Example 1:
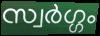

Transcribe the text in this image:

സ്വർഗ്ഗം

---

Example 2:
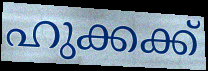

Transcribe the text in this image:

ഹുക്കക്ക്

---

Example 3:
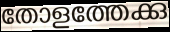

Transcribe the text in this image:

തോളത്തേക്കു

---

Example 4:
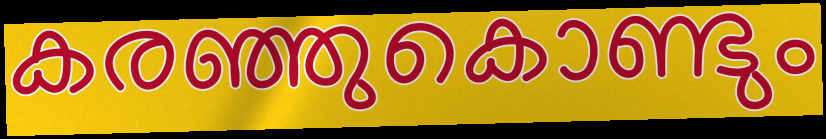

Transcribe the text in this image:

കരഞ്ഞുകൊണ്ടും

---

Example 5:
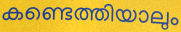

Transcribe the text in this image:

കണ്ടെത്തിയാലും